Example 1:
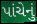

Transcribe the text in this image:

પાંચેનું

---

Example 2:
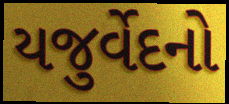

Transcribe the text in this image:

યજુર્વેદનો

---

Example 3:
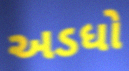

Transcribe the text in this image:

અડધો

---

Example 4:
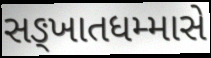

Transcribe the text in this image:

સઙ્ખાતધમ્માસે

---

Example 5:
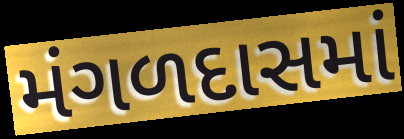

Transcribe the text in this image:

મંગળદાસમાં